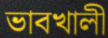
ভাবখালী